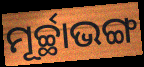
ମୂର୍ଚ୍ଛାଭଙ୍ଗ